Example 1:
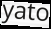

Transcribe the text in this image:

yato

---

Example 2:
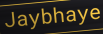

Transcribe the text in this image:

Jaybhaye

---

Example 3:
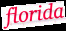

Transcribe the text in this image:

florida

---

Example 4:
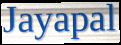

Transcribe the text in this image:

Jayapal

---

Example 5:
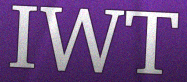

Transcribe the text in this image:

IWT